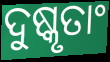
ଦୁଷ୍କୃତାଂ